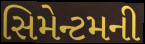
સિમેન્ટમની